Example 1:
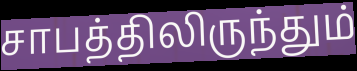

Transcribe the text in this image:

சாபத்திலிருந்தும்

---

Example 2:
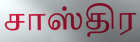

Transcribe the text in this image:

சாஸ்திர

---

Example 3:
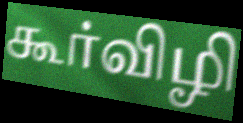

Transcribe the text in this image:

கூர்விழி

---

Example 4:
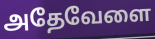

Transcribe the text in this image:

அதேவேளை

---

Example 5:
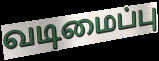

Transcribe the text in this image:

வடிமைப்பு